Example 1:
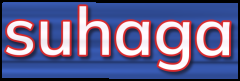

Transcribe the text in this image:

suhaga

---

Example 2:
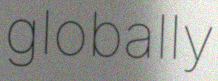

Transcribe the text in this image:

globally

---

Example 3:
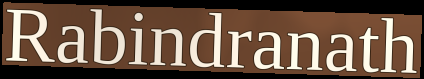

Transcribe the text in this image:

Rabindranath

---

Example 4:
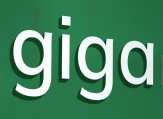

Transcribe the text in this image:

giga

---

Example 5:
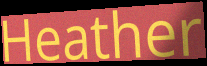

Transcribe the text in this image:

Heather